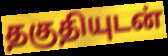
தகுதியுடன்